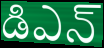
డిఎన్